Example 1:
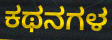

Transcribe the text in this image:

ಕಥನಗಳ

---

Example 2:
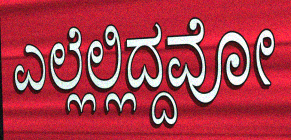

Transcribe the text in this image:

ಎಲ್ಲೆಲ್ಲಿದ್ದವೋ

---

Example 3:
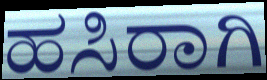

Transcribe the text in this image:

ಹಸಿರಾಗಿ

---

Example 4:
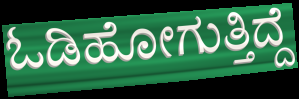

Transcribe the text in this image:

ಓಡಿಹೋಗುತ್ತಿದ್ದೆ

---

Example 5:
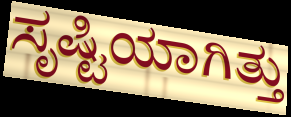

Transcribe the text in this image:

ಸೃಷ್ಟಿಯಾಗಿತ್ತು